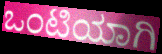
ಒಂಟಿಯಾಗಿ